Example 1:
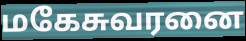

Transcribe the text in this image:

மகேசுவரனை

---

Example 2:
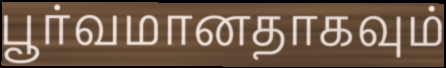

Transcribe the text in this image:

பூர்வமானதாகவும்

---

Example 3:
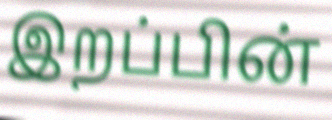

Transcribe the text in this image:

இறப்பின்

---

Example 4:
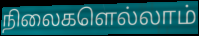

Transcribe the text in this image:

நிலைகளெல்லாம்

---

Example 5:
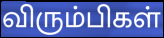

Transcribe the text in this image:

விரும்பிகள்